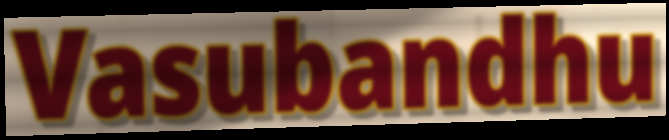
Vasubandhu